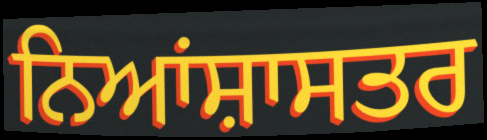
ਨਿਆਂਸ਼ਾਸਤਰ